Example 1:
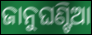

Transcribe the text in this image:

ଜାନୁଘଣ୍ଟିଆ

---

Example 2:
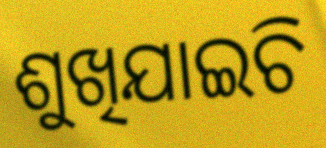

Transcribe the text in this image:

ଶୁଖିଯାଇଚି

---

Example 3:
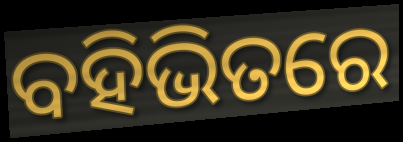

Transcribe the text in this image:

ବହିଭିତରେ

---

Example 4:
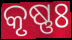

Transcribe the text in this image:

କୃଷ୍ଣଃ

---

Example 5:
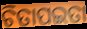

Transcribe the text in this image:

ଚିତାପଇତା